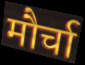
मौर्चा